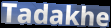
Tadakhe